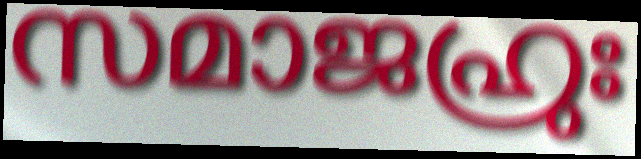
സമാജഹ്രുഃ